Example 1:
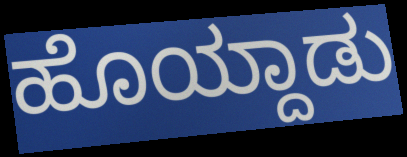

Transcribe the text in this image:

ಹೊಯ್ದಾಡು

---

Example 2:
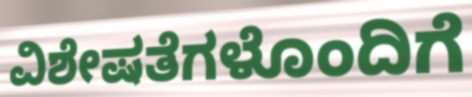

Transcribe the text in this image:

ವಿಶೇಷತೆಗಳೊಂದಿಗೆ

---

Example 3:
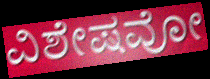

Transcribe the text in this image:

ವಿಶೇಷವೋ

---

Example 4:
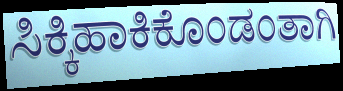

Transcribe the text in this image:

ಸಿಕ್ಕಿಹಾಕಿಕೊಂಡಂತಾಗಿ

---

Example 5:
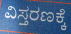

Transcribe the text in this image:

ವಿಸ್ತರಣಕ್ಕೆ